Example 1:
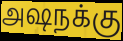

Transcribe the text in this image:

அஷநக்கு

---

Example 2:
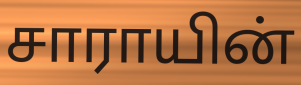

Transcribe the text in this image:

சாராயின்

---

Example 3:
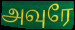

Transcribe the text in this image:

அவுரே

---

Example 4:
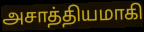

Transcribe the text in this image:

அசாத்தியமாகி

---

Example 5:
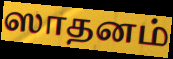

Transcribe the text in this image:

ஸாதனம்